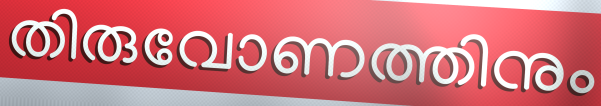
തിരുവോണത്തിനും